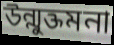
উন্মুক্তমনা